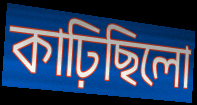
কাঢ়িছিলো